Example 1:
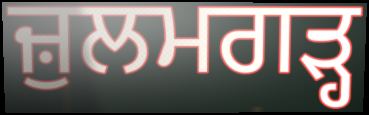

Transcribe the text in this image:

ਜ਼ੁਲਮਗੜ੍ਹ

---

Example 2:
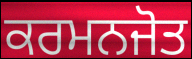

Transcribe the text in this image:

ਕਰਮਨਜੋਤ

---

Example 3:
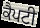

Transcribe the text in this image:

ਕੈਪਟੀ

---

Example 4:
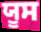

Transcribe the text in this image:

ਯੂਸ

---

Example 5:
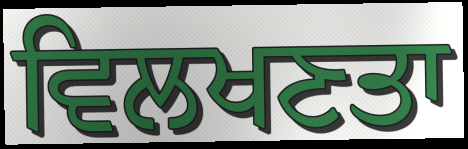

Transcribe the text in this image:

ਵਿਲਖਣਤਾ